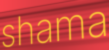
shama